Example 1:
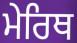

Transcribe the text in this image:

ਮੇਰਿਥ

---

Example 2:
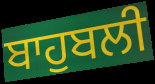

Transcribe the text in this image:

ਬਾਹੁਬਲੀ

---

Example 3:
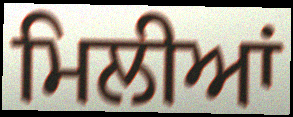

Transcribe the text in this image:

ਮਿਲੀਆਂ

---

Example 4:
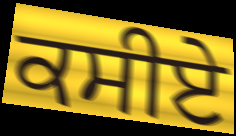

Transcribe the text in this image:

ਕਸੀਏ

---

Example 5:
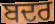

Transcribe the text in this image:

ਬਦਰ